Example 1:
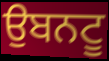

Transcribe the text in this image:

ਉਬਨਟੂ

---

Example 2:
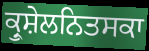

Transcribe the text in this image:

ਕ੍ਰੁਸ਼ੇਲਨਿਤਸਕਾ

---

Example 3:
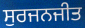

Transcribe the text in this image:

ਸੁਰਜਨਜੀਤ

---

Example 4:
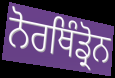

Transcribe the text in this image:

ਨੋਰਥਿੰਡ੍ਰੋਨ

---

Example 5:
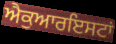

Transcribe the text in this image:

ਐਕੁਆਰਇਸਟਾਂ